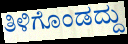
ತಿಳಿಗೊಂಡದ್ದು